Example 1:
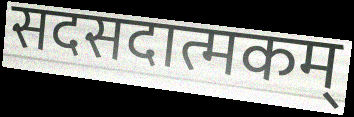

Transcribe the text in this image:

सदसदात्मकम्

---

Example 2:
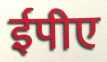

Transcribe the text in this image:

ईपीए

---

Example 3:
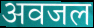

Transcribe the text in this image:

अवजल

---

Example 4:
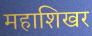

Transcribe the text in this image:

महाशिखर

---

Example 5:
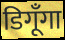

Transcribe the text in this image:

डिगूँगा